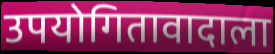
उपयोगितावादाला